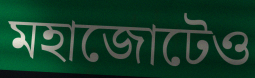
মহাজোটেও